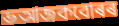
ভআজকবোৰৰ